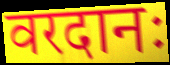
वरदानः